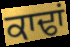
ਕਾਢਾਂ